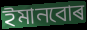
ইমানবোৰ